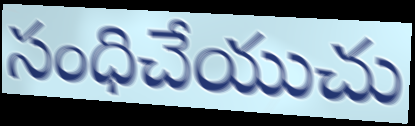
సంధిచేయుచు